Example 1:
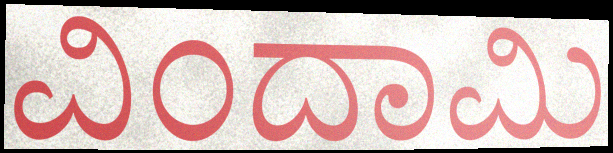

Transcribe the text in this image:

ವಿಂದಾಮಿ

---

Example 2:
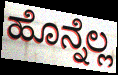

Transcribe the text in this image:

ಹೊನ್ನೆಲ್ಲ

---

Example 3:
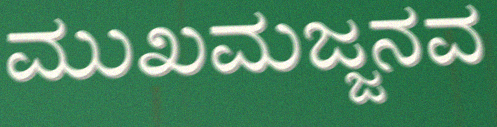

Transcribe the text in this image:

ಮುಖಮಜ್ಜನವ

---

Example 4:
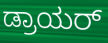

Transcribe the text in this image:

ಡ್ರಾಯರ್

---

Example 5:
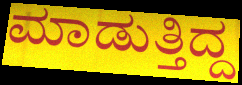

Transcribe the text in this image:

ಮಾಡುತ್ತಿದ್ದ